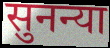
सुनन्या